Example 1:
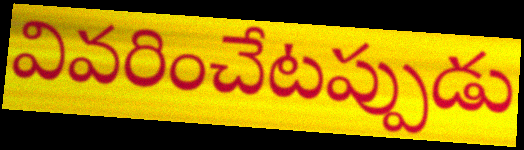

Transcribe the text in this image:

వివరించేటప్పుడు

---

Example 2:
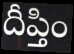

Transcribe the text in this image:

దీప్తిం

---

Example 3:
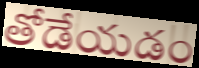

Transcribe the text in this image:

తోడేయడం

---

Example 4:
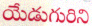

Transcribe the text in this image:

యేడుగురిని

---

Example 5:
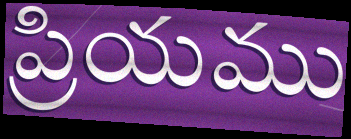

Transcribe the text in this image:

ప్రియము